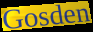
Gosden